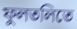
ফুলতলিতে